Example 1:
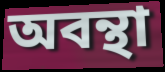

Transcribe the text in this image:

অবন্থা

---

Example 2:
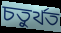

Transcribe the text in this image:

চতুর্থত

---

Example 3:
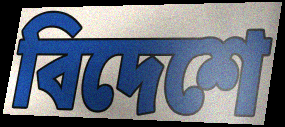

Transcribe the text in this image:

বিদেশে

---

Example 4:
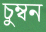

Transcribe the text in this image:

চুম্বন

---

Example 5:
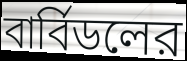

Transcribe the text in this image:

বার্বিডলের